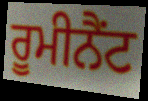
ਰੂਮੀਨੈਂਟ